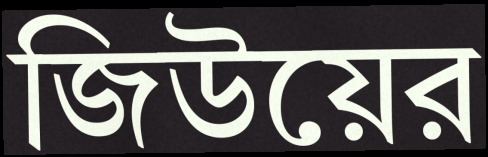
জিউয়ের